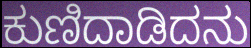
ಕುಣಿದಾಡಿದನು